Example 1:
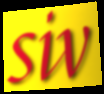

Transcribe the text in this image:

siv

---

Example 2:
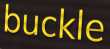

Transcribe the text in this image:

buckle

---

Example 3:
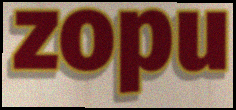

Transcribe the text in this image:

zopu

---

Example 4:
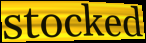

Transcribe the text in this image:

stocked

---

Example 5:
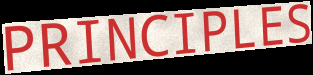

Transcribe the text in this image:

PRINCIPLES